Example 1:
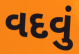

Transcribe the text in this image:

વદવું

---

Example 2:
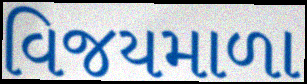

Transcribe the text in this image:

વિજયમાળા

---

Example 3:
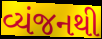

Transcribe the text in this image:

વ્યંજનથી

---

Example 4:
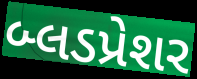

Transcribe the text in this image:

બ્લડપ્રેશર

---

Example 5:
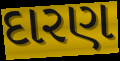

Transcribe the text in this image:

દારણ